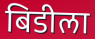
बिडीला